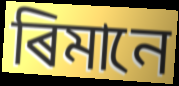
ৰিমানে